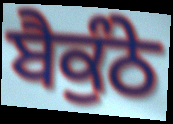
ਬੈਕੁੰਠੇ